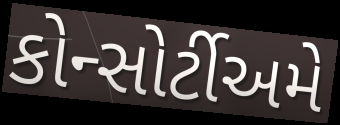
કોન્સોર્ટીઅમે